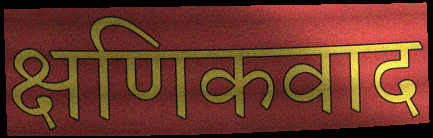
क्षणिकवाद